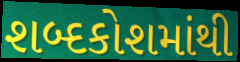
શબ્દકોશમાંથી